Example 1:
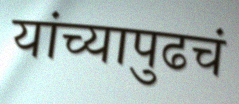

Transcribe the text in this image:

यांच्यापुढचं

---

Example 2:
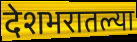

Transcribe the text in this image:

देशभरातल्या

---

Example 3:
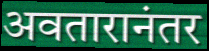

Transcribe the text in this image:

अवतारानंतर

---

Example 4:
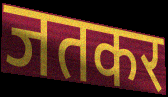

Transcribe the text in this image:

जतकर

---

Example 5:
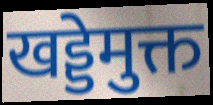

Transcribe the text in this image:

खड्डेमुक्त